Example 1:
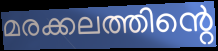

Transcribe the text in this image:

മരക്കലത്തിന്റെ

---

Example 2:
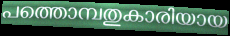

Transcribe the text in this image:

പത്തൊമ്പതുകാരിയായ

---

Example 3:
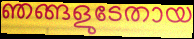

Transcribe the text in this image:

ഞങ്ങളുടേതായ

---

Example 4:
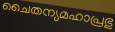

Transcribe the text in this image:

ചൈതന്യമഹാപ്രഭു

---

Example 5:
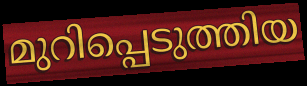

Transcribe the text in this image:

മുറിപ്പെടുത്തിയ